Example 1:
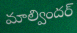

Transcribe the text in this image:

మాల్విందర్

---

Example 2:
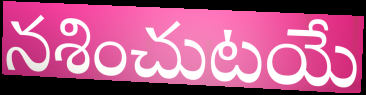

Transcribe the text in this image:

నశించుటయే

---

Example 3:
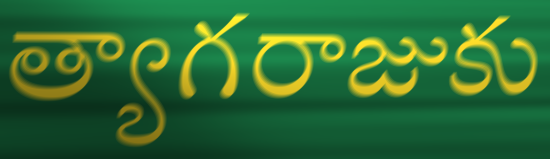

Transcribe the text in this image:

త్యాగరాజుకు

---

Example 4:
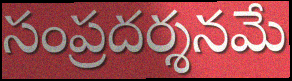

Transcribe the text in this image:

సంప్రదర్శనమే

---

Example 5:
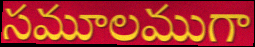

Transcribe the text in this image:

సమూలముగా